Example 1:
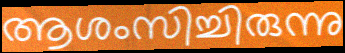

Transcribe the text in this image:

ആശംസിച്ചിരുന്നു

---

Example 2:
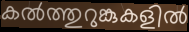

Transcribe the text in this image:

കൽത്തുറുങ്കുകളിൽ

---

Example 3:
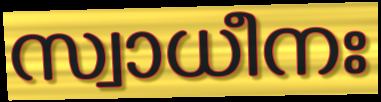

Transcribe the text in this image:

സ്വാധീനഃ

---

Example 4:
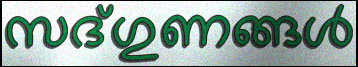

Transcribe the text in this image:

സദ്ഗുണങ്ങൾ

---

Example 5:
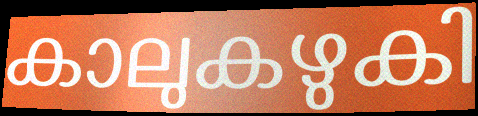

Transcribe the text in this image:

കാലുകഴുകി